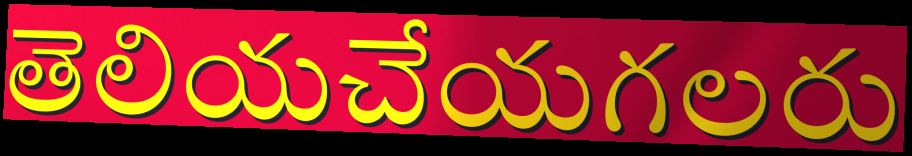
తెలియచేయగలరు